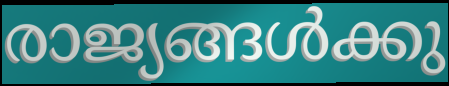
രാജ്യങ്ങൾക്കു